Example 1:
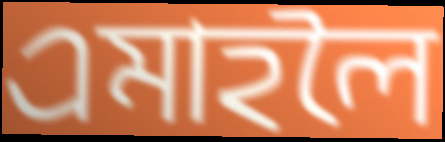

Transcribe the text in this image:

এমাহলৈ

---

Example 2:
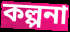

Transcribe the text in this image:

কল্পনা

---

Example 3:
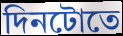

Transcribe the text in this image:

দিনটোতে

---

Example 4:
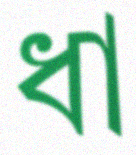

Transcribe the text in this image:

ধা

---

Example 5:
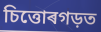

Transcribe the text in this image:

চিত্তোৰগড়ত